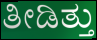
ತೀಡಿತ್ತು